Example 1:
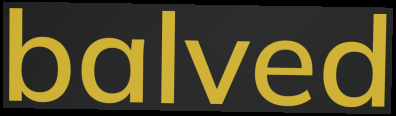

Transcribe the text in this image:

balved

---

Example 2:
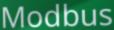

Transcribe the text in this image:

Modbus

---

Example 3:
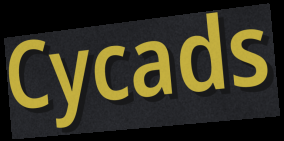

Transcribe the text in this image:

Cycads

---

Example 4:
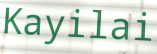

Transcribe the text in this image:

Kayilai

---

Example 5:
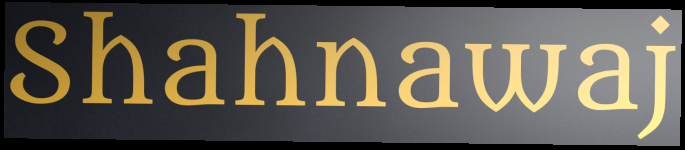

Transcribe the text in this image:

Shahnawaj